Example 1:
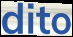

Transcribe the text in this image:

dito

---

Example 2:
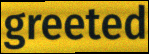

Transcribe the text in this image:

greeted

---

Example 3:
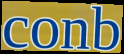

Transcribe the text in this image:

conb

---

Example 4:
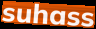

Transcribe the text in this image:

suhass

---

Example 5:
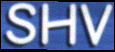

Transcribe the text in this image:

SHV